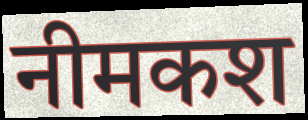
नीमकश